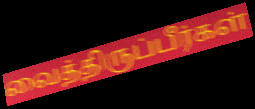
வைத்திருப்பீர்கள்